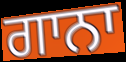
ਗਾਨਾ